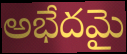
అభేదమై